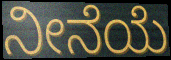
ನೀನೆಯೆ